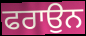
ਫਰਾਉਨ